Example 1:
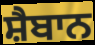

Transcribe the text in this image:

ਸ਼ੈਬਾਨ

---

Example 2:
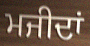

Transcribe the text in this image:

ਮਜੀਦਾਂ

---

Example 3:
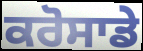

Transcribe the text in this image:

ਕਰੋਸਾਡੇ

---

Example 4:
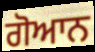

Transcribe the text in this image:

ਗੋਆਨ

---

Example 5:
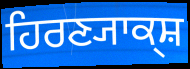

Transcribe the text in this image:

ਹਿਰਣ੍ਯਾਕ੍ਸ਼